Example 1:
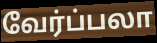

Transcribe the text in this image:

வேர்ப்பலா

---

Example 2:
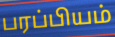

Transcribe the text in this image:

பரப்பியம்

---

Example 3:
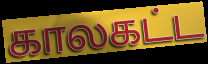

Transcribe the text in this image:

காலகட்ட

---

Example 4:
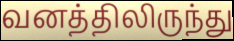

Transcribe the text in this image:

வனத்திலிருந்து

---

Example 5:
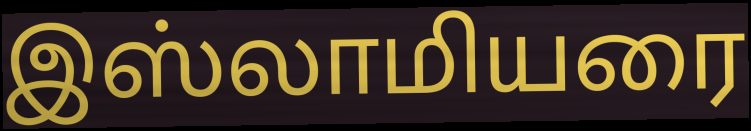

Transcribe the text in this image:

இஸ்லாமியரை